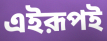
এইরূপই